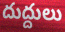
దుద్దులు